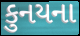
કુનયના